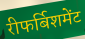
रीफर्बिशमेंट